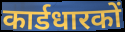
कार्डधारकों